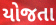
યોજતા